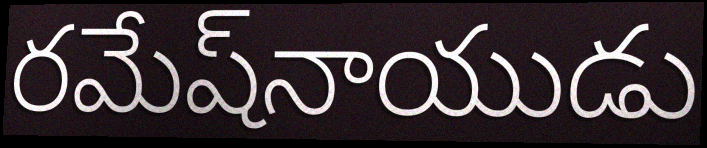
రమేష్‌నాయుడు